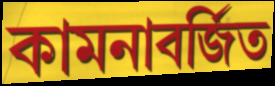
কামনাবর্জিত